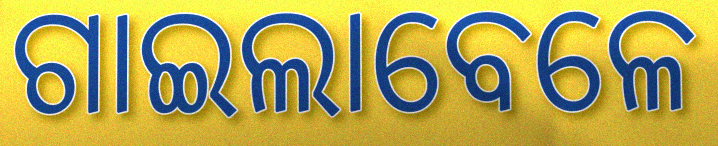
ଗାଇଲାବେଳେ